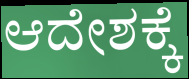
ಆದೇಶಕ್ಕೆ